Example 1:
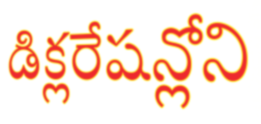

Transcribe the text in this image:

డిక్లరేషన్లోని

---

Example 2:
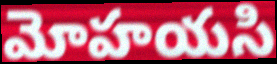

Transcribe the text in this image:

మోహయసి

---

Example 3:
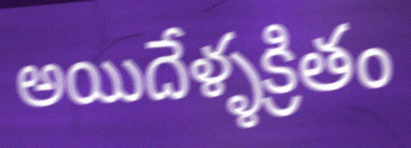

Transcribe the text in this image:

అయిదేళ్ళక్రితం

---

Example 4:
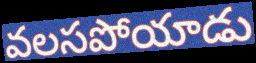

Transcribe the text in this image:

వలసపోయాడు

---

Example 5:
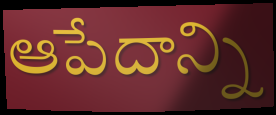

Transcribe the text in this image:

ఆపేదాన్ని